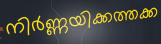
നിർണ്ണയിക്കത്തക്ക